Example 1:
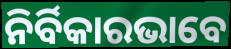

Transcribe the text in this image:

ନିର୍ବିକାରଭାବେ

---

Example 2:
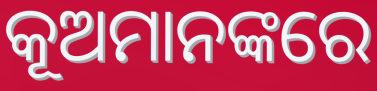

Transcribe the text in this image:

କୂଅମାନଙ୍କରେ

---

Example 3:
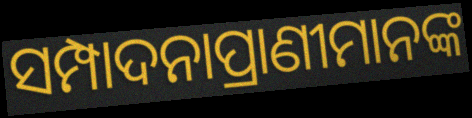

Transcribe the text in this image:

ସମ୍ପାଦନାପ୍ରାଣୀମାନଙ୍କ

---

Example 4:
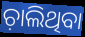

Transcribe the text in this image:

ଚ଼ାଲିଥିବା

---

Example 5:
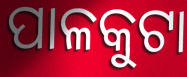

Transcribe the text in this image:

ପାଳକୁଟା